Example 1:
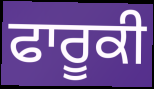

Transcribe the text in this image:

ਫਾਰੂਕੀ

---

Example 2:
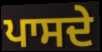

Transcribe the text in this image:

ਪਾਸਦੇ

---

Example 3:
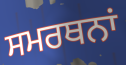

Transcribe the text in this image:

ਸਮਰਥਨਾਂ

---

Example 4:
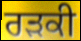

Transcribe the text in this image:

ਰੜਕੀ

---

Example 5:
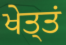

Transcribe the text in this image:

ਖੇਤ੍ਤਂ